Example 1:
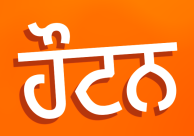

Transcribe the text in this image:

ਹੌਟਨ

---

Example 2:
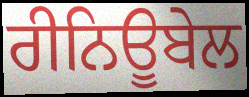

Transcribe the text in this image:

ਰੀਨਿਊਬੇਲ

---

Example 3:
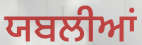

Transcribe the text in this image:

ਯਬਲੀਆਂ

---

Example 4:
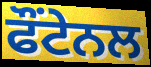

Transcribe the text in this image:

ਫੌਂਟੇਨਲ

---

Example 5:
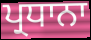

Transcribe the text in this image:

ਪ੍ਰਧਾਨਾ